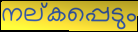
നല്കപ്പെടും